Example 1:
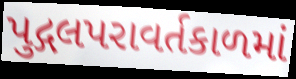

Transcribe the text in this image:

પુદ્ગલપરાવર્તકાળમાં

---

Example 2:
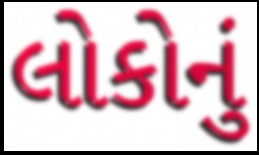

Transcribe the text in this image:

લોકોનું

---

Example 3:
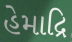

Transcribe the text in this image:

હેમાદ્રિ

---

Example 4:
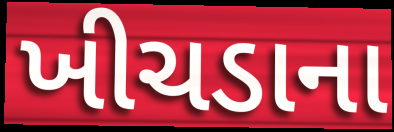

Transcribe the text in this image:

ખીચડાના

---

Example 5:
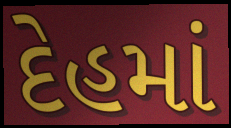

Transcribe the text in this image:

દેહમાં